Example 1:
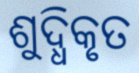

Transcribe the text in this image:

ଶୁଦ୍ଧିକୃତ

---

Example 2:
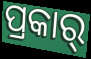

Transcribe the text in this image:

ପ୍ରକାର୍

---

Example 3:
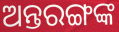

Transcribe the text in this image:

ଅନ୍ତରଙ୍ଗଙ୍କ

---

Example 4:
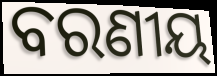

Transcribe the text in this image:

ବରଣୀୟ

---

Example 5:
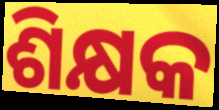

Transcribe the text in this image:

ଶିକ୍ଷକ